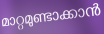
മാറ്റമുണ്ടാക്കാൻ